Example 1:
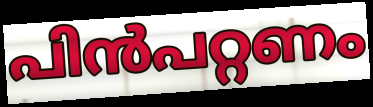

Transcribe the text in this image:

പിൻപറ്റണം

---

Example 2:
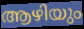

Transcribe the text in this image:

ആഴിയും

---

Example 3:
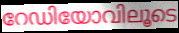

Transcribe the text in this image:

റേഡിയോവിലൂടെ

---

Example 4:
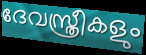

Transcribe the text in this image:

ദേവസ്ത്രീകളും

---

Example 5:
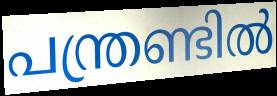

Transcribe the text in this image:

പന്ത്രണ്ടിൽ